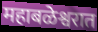
महाबळेश्वरात